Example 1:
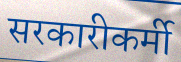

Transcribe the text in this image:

सरकारीकर्मी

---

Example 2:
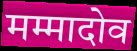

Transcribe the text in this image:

मम्मादोव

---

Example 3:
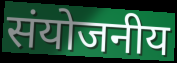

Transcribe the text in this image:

संयोजनीय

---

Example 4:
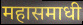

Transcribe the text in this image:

महासमाधी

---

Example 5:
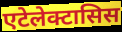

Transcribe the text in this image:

एटेलेक्टासिस